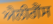
ਐਲੀਗੈਂਸ